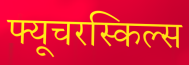
फ्यूचरस्किल्स